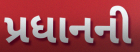
પ્રધાનની